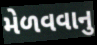
મેળવવાનુ